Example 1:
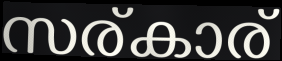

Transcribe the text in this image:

സര്കാര്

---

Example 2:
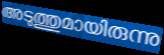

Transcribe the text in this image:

അടുത്തുമായിരുന്നു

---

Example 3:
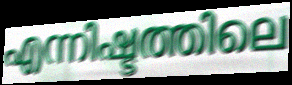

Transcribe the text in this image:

എന്നിഷ്ടത്തിലെ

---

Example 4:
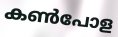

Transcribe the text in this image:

കൺപോള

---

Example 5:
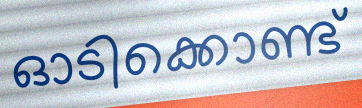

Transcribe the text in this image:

ഓടിക്കൊണ്ട്